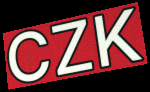
CZK